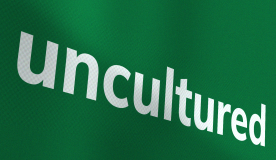
uncultured